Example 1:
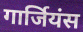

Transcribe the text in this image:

गार्जियंस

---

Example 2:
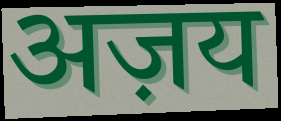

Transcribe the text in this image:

अज़य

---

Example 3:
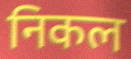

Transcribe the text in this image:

निकल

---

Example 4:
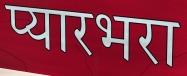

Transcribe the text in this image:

प्यारभरा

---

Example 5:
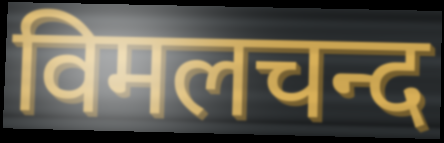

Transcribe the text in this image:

विमलचन्द